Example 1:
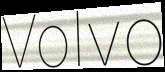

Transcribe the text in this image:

Volvo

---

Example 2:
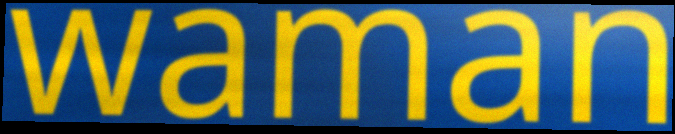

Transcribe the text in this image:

waman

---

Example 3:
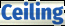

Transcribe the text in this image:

Ceiling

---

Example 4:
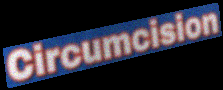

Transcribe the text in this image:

Circumcision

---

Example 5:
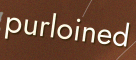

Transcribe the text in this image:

purloined